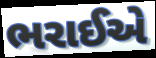
ભરાઈએ